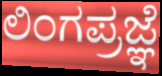
ಲಿಂಗಪ್ರಜ್ಞೆ